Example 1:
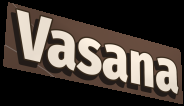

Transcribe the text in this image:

Vasana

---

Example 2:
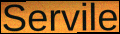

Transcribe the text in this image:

Servile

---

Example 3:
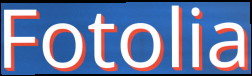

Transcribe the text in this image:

Fotolia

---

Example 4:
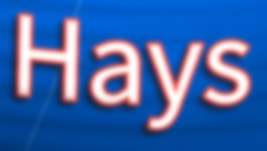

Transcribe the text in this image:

Hays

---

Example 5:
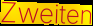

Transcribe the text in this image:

Zweiten